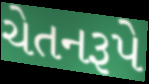
ચેતનરૂપે